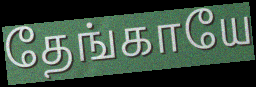
தேங்காயே